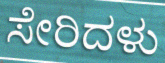
ಸೇರಿದಳು